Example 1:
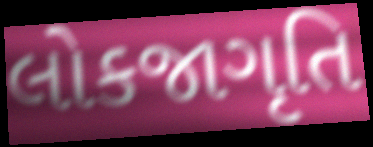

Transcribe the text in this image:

લોકજાગૃતિ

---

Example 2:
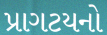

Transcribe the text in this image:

પ્રાગટયનો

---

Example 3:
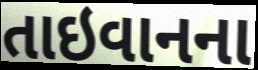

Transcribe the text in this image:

તાઇવાનના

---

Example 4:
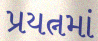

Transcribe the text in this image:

પ્રયત્નમાં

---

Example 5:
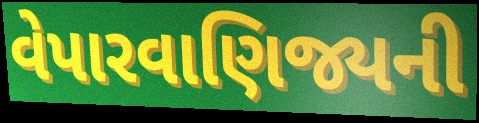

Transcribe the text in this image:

વેપારવાણિજ્યની